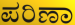
ಪರಿಣಾ